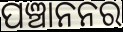
ପଞ୍ଚାନନର